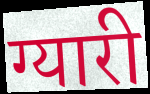
ग्यारी